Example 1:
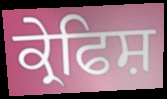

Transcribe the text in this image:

ਕ੍ਰੇਫਿਸ਼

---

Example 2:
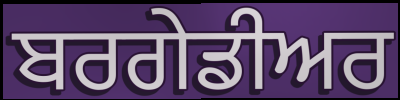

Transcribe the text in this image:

ਬਰਗੇਡੀਅਰ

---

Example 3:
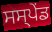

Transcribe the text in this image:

ਸਸ੍ਪੇੰਡ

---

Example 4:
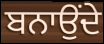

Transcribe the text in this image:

ਬਨਾਉਂਦੇ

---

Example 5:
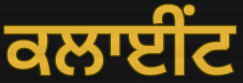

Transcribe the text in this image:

ਕਲਾਈਂਟ